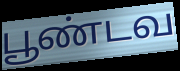
பூண்டவ